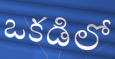
ఒకడిలో